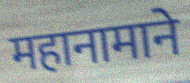
महानामाने